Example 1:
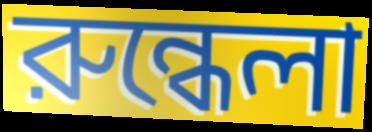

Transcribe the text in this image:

রুন্ধেলা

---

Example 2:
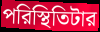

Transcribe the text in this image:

পরিস্থিতিটার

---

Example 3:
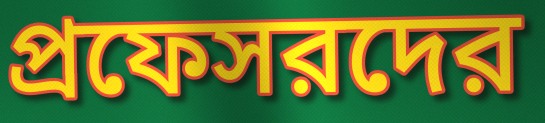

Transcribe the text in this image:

প্রফেসরদের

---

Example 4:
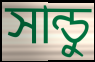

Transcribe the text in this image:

সান্ডু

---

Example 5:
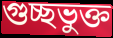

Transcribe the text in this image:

গুচ্ছভুক্ত